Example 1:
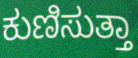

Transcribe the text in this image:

ಕುಣಿಸುತ್ತಾ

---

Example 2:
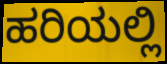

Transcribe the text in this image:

ಹರಿಯಲ್ಲಿ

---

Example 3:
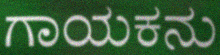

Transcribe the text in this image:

ಗಾಯಕನು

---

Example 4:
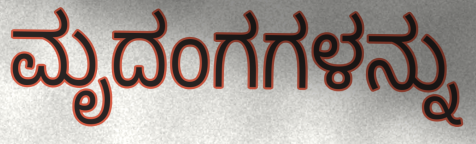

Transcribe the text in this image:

ಮೃದಂಗಗಳನ್ನು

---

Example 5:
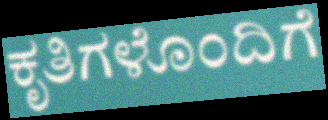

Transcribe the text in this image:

ಕೃತಿಗಳೊಂದಿಗೆ